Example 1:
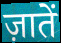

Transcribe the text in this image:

ज़ातें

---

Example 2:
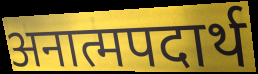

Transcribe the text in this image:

अनात्मपदार्थ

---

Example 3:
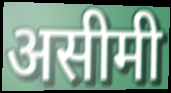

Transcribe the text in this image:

असीमी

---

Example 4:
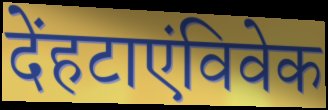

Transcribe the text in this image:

देंहटाएंविवेक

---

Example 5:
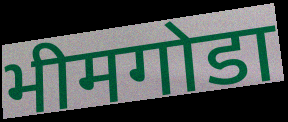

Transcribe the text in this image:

भीमगोडा